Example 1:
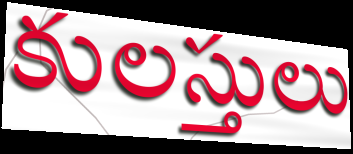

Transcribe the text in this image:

కులస్తులు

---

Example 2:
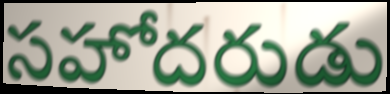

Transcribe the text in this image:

సహోదరుడు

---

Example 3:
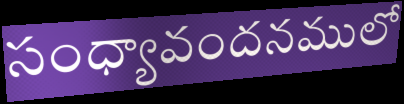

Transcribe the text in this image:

సంధ్యావందనములో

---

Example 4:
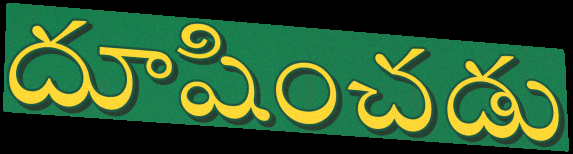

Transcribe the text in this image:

దూషించడు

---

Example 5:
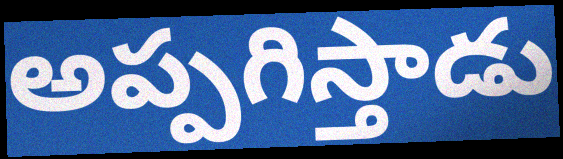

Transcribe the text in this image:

అప్పగిస్తాడు